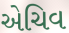
એચિવ